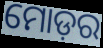
ମୋଡ଼ର